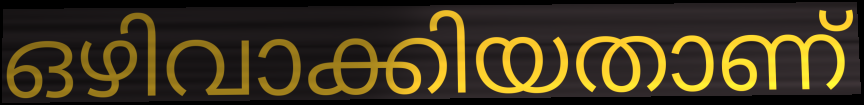
ഒഴിവാക്കിയതാണ്